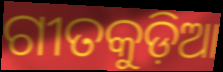
ଗୀତକୁଡ଼ିଆ